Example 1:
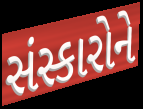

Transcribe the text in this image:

સંસ્કારોને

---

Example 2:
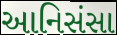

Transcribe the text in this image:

આનિસંસા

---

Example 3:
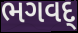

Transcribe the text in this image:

ભગવદ્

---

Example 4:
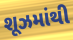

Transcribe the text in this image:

શૂઝમાંથી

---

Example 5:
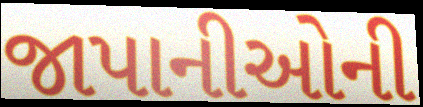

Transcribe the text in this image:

જાપાનીઓની